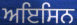
ਅਇਸਿਨ